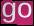
go